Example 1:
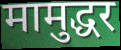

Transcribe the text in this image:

मामुद्धर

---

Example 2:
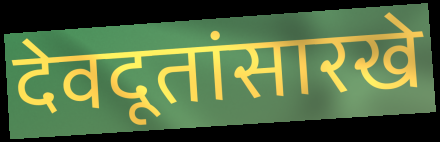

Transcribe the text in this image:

देवदूतांसारखे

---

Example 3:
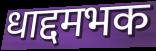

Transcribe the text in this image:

धाद्दमभक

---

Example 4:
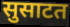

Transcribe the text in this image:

सुसाटत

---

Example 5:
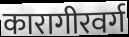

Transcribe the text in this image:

कारागीरवर्ग